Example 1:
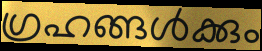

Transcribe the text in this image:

ഗ്രഹങ്ങൾക്കും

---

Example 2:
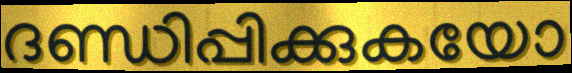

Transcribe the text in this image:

ദണ്ഡിപ്പിക്കുകയോ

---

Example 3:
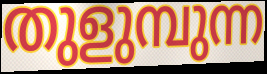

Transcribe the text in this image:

തുളുമ്പുന്ന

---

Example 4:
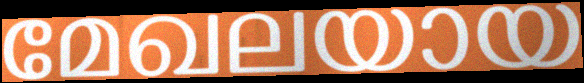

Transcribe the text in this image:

മേഖലയായ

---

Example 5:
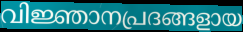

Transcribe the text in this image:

വിജ്ഞാനപ്രദങ്ങളായ